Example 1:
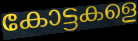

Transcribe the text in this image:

കോട്ടകളെ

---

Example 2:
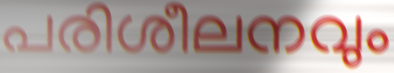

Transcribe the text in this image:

പരിശീലനവും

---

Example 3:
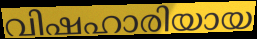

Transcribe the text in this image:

വിഷഹാരിയായ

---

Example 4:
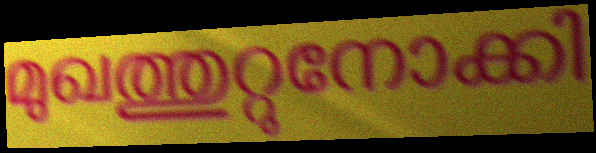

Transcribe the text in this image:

മുഖത്തുറ്റുനോക്കി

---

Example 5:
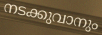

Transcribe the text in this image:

നടക്കുവാനും